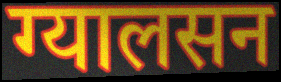
ग्यालसन